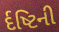
ર્દષ્ટિની